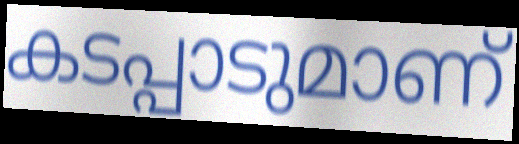
കടപ്പാടുമാണ്